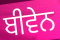
ਬੀਵੇਨ